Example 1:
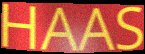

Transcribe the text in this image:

HAAS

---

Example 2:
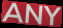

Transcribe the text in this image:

ANY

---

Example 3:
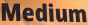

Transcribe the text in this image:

Medium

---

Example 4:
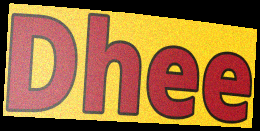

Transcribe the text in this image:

Dhee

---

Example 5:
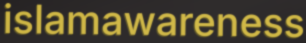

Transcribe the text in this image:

islamawareness